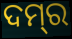
ଦମ୍‌ର